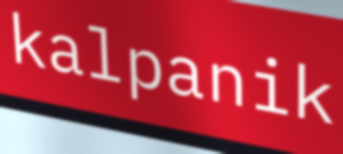
kalpanik